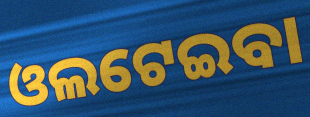
ଓଲଟେଇବା